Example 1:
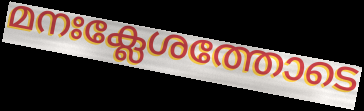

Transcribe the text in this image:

മനഃക്ലേശത്തോടെ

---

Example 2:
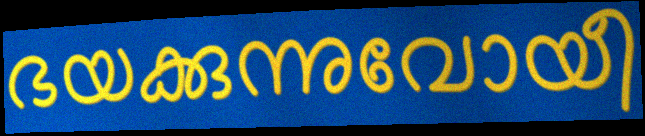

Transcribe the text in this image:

ഭയക്കുന്നുവോയീ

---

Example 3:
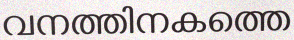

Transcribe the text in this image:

വനത്തിനകത്തെ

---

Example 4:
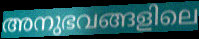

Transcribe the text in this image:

അനുഭവങ്ങളിലെ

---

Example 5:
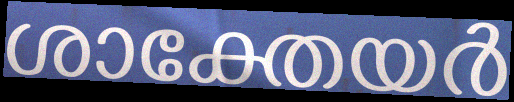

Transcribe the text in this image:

ശാക്തേയർ